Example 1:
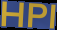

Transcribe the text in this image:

HPI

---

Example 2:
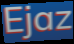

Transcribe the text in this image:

Ejaz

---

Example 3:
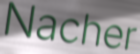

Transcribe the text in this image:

Nacher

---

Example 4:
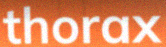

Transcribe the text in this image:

thorax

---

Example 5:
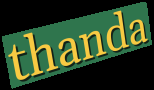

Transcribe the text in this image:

thanda